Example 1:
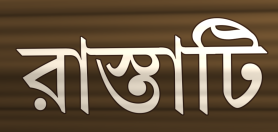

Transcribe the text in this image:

রাস্তাটি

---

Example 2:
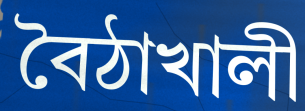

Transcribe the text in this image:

বৈঠাখালী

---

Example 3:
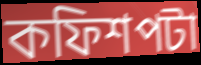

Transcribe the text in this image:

কফিশপটা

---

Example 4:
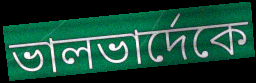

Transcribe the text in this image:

ভালভার্দেকে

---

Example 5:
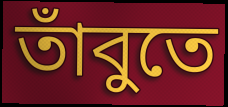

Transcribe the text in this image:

তাঁবুতে